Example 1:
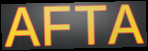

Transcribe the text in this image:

AFTA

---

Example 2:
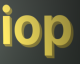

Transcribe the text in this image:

iop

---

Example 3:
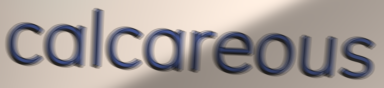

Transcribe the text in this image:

calcareous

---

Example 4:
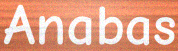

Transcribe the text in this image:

Anabas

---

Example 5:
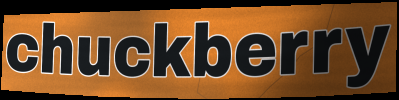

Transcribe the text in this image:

chuckberry